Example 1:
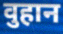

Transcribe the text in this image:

वुहान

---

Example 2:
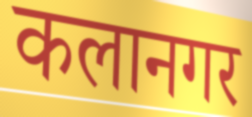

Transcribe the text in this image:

कलानगर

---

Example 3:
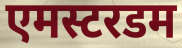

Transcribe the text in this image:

एमस्टरडम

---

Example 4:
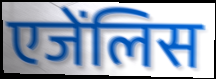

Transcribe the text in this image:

एजेंलिस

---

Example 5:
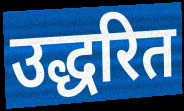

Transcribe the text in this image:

उद्धरित